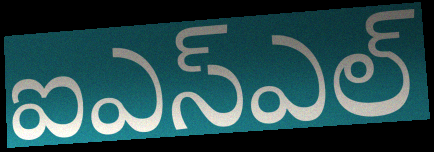
ఐఎస్ఎల్